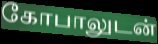
கோபாலுடன்